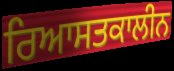
ਰਿਆਸਤਕਾਲੀਨ